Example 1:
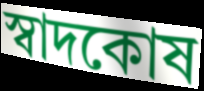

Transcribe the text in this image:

স্বাদকোষ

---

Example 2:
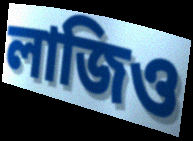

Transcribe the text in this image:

লাজিও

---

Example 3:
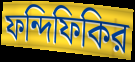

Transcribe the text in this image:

ফন্দিফিকির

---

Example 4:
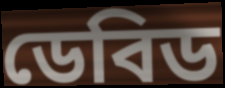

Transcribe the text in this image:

ডেবিড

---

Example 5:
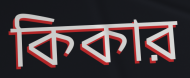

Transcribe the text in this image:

কিকার